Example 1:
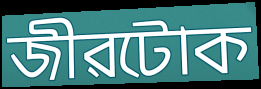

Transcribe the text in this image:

জীৱটোক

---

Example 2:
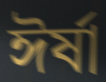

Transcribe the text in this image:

ঈৰ্ষা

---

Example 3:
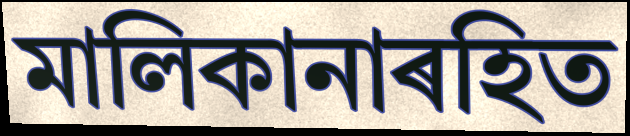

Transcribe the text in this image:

মালিকানাৰহিত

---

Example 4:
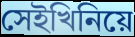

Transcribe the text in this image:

সেইখিনিয়ে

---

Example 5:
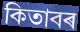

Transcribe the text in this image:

কিতাবৰ